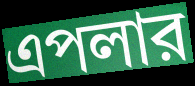
এপলার